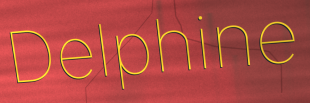
Delphine